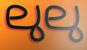
ലുലു